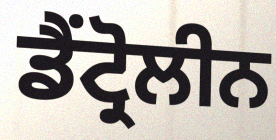
ਡੈਂਟ੍ਰੋਲੀਨ